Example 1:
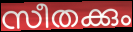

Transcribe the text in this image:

സീതക്കും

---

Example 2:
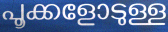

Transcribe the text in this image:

പൂക്കളോടുള്ള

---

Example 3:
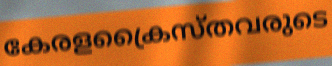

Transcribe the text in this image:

കേരളക്രൈസ്തവരുടെ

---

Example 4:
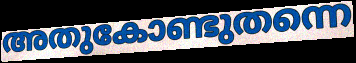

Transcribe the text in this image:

അതുകോണ്ടുതന്നെ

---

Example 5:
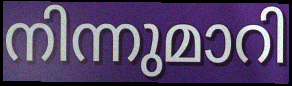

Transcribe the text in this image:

നിന്നുമാറി